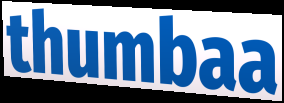
thumbaa